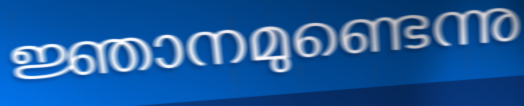
ജ്ഞാനമുണ്ടെന്നു